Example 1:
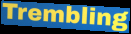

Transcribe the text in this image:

Trembling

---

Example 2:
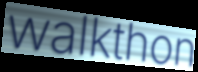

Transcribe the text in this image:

walkthon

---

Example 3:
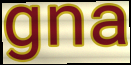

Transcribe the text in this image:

gna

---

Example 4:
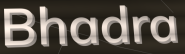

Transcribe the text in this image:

Bhadra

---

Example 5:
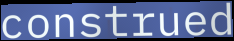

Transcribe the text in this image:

construed